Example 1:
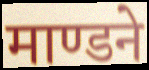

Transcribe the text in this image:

माण्डने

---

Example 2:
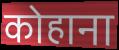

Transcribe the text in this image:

कोहाना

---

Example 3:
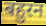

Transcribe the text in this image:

बहुरन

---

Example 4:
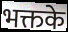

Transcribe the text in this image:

भक्तके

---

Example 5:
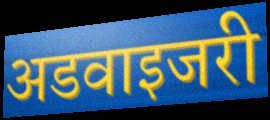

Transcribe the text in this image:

अडवाइजरी